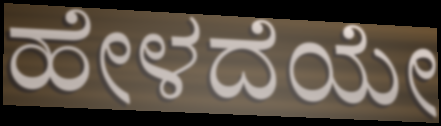
ಹೇಳದೆಯೇ